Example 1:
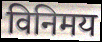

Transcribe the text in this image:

विनिमय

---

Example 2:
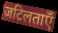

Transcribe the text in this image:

जटिलताएँ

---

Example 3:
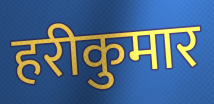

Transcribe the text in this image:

हरीकुमार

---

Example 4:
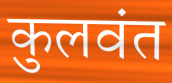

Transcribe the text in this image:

कुलवंत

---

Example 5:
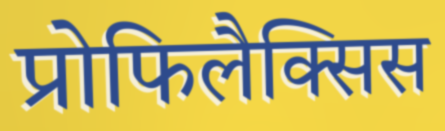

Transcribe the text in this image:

प्रोफिलैक्सिस